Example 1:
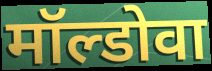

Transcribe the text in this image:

मॉल्डोवा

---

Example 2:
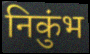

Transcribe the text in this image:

निकुंभ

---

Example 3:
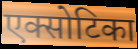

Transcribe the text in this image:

एक्सोटिका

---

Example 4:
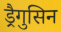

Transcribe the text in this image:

ड्रैगुसिन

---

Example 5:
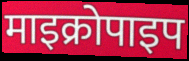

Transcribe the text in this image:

माइक्रोपाइप